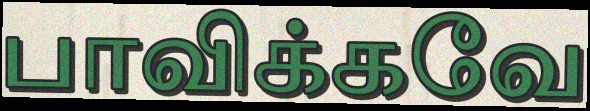
பாவிக்கவே